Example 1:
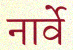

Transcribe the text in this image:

नार्वे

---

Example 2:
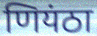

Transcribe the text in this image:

णियंठा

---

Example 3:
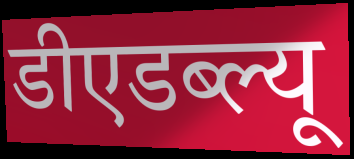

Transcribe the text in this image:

डीएडब्ल्यू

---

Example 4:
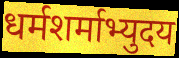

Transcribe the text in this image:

धर्मशर्माभ्युदय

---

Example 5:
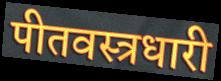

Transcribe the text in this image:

पीतवस्त्रधारी